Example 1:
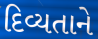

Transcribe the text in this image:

દિવ્યતાને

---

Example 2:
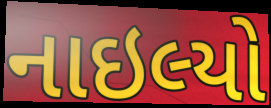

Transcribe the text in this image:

નાઇલ્યો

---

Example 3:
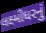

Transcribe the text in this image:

લક્ષ્મીધરનું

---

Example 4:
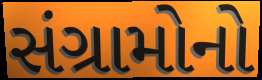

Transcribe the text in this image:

સંગ્રામોનો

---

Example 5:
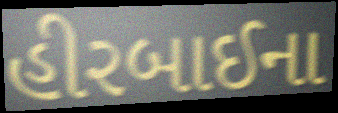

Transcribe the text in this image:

હીરબાઈના